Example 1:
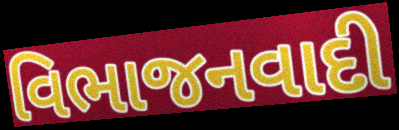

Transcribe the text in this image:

વિભાજનવાદી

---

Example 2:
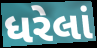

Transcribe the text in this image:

ધરેલાં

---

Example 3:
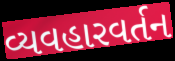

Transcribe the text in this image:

વ્યવહારવર્તન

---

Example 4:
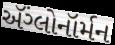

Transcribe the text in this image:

ઍંગ્લોનૉર્મન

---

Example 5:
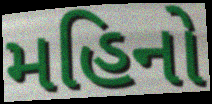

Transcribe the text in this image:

મહિનો